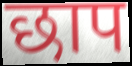
छाप